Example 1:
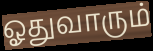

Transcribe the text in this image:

ஓதுவாரும்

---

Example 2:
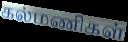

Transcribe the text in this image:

கல்மணிகள்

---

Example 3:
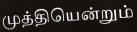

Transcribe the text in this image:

முத்தியென்றும்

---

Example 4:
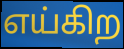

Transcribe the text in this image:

எய்கிற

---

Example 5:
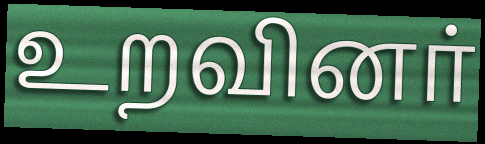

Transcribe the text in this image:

உறவினர்